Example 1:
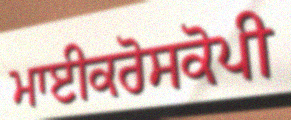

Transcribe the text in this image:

ਮਾਈਕਰੋਸਕੋਪੀ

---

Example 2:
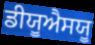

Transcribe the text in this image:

ਡੀਯੂਐਸਯੂ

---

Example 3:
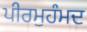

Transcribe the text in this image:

ਪੀਰਮੁਹੰਮਦ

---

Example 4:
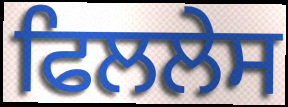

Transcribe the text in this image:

ਫਿਲਲੇਸ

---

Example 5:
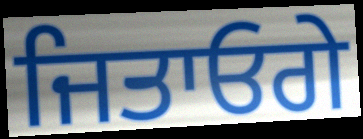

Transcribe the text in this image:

ਜਿਤਾਓਗੇ